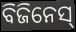
ବିଜିନେସ୍